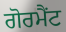
ਗੋਰਮੈਂਟ